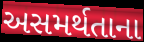
અસમર્થતાના